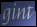
gint